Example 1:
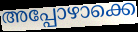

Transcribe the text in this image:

അപ്പോഴാക്കെ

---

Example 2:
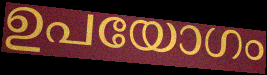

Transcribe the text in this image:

ഉപയോഗം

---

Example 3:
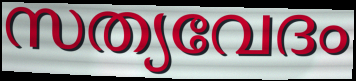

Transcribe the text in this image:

സത്യവേദം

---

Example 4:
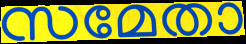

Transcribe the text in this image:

സമേതാ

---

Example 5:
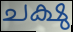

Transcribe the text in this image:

ചക്ഷു